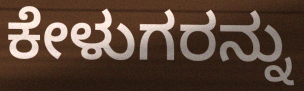
ಕೇಳುಗರನ್ನು